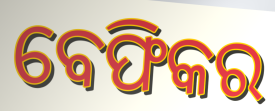
ବେଫିକର